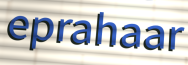
eprahaar